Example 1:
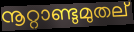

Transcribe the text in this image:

നൂറ്റാണ്ടുമുതല്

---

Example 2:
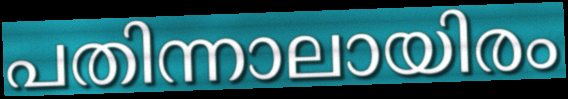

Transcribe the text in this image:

പതിന്നാലായിരം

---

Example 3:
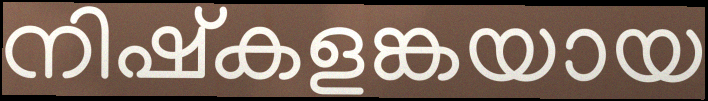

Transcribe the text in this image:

നിഷ്കളങ്കയായ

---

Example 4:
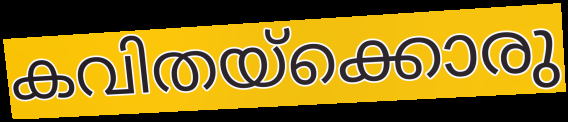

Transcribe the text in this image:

കവിതയ്ക്കൊരു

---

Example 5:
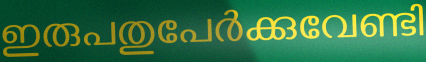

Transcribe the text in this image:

ഇരുപതുപേർക്കുവേണ്ടി